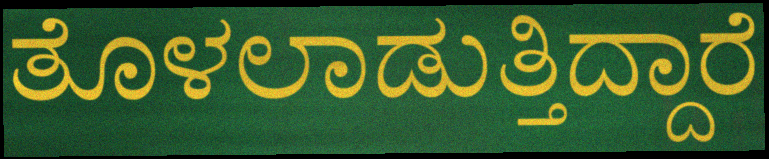
ತೊಳಲಾಡುತ್ತಿದ್ದಾರೆ